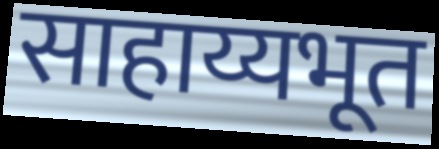
साहाय्यभूत